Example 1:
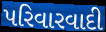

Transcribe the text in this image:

પરિવારવાદી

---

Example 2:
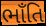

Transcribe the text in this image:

ભાઁતિ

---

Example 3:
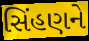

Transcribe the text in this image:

સિંહણને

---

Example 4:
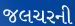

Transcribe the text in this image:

જલચરની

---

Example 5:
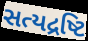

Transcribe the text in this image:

સત્યદ્રષ્ટિ